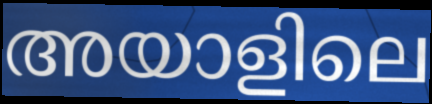
അയാളിലെ